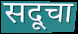
सदूचा